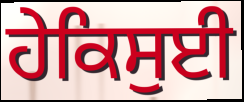
ਹੇਕਿਸੁਈ